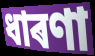
ধাৰণা